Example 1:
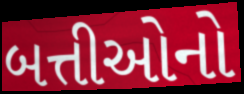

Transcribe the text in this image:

બત્તીઓનો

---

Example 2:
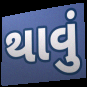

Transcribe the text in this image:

થાવું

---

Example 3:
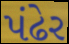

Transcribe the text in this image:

પંઢેર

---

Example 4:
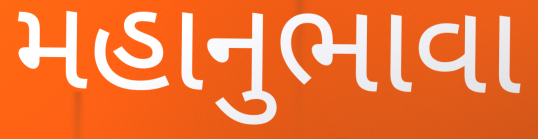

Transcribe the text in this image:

મહાનુભાવા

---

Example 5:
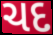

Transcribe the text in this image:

ચદ